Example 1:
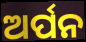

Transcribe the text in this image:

ଅର୍ପନ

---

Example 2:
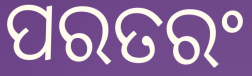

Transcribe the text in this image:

ପରତରଂ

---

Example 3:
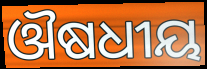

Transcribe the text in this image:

ଔଷଧୀୟ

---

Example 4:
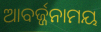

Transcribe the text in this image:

ଆବର୍ଜ୍ଜନାମୟ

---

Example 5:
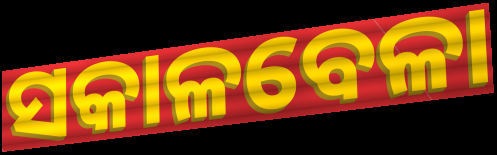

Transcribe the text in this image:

ସକାଳବେଳା